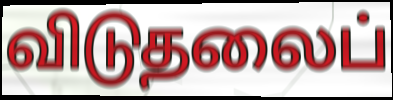
விடுதலைப்